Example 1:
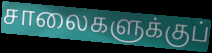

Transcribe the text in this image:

சாலைகளுக்குப்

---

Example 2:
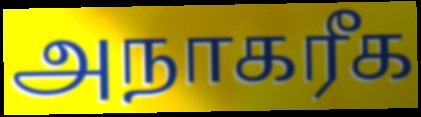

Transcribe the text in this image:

அநாகரீக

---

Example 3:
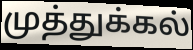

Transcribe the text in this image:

முத்துக்கல்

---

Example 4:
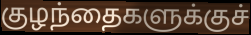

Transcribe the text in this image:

குழந்தைகளுக்குச்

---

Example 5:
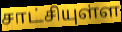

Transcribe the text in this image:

சாட்சியுள்ள